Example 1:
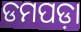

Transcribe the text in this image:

ଡମପଡ଼ା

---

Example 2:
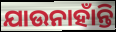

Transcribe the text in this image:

ଯାଉନାହାଁନ୍ତି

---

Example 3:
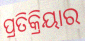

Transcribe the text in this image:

ପ୍ରତିକ୍ରିୟାର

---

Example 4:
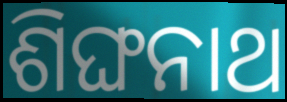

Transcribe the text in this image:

ଶିଙ୍ଘନାଥ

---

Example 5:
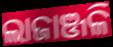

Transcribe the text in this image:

ଲାଜାଞ୍ଜଳି